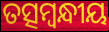
ତତ୍ସମ୍ବନ୍ଧୀୟ